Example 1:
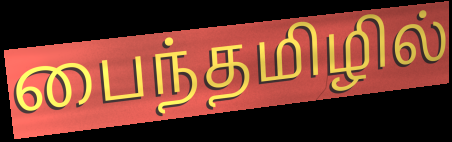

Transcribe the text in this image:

பைந்தமிழில்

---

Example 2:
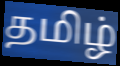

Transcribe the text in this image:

தமிழ்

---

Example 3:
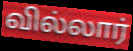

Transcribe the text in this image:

வில்லார்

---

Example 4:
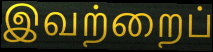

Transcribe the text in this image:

இவற்றைப்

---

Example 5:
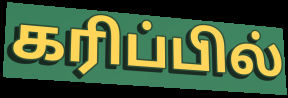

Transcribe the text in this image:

கரிப்பில்